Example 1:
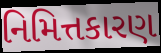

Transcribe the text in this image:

નિમિત્તકારણ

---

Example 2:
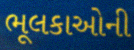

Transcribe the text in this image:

ભૂલકાઓની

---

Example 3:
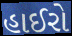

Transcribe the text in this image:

હાઈરો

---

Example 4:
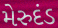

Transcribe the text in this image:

મેરુદંડ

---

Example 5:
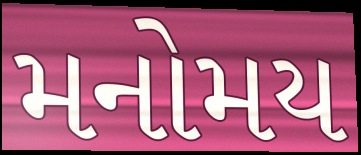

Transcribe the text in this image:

મનોમય